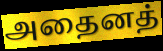
அதைனத்